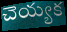
చెయ్యక